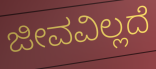
ಜೀವವಿಲ್ಲದೆ